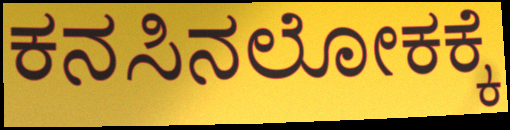
ಕನಸಿನಲೋಕಕ್ಕೆ